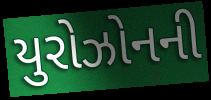
યુરોઝોનની